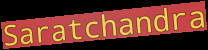
Saratchandra